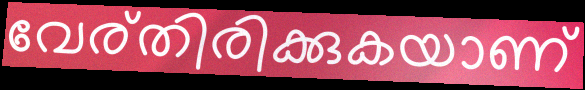
വേര്തിരിക്കുകയാണ്